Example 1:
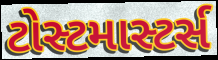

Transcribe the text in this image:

ટોસ્ટમાસ્ટર્સ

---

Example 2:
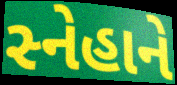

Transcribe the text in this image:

સ્નેહાને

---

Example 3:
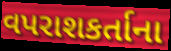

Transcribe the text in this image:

વપરાશકર્તાના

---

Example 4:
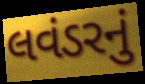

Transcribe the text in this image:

લવંડરનું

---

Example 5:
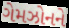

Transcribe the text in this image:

ગેમઝોનને